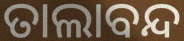
ତାଲାବନ୍ଦ